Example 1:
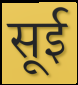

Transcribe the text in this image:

सूई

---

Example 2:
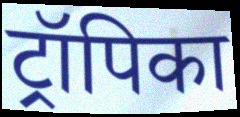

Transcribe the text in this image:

ट्रॉपिका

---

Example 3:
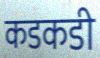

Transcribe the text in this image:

कडकडी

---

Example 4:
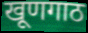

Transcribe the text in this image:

खूणगाठ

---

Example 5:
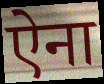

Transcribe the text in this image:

ऐना